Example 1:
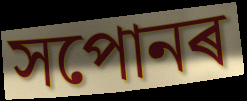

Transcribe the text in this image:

সপোনৰ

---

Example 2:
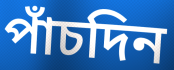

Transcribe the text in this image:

পাঁচদিন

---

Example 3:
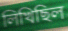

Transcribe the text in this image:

লিখিছিল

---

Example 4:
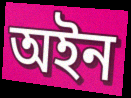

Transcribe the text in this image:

অইন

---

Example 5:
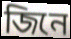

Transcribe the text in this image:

জিনে